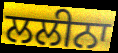
ਲਲੀਨਾ